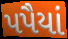
પપૈયાં